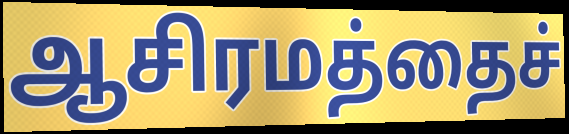
ஆசிரமத்தைச்